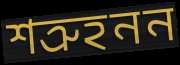
শত্রুহনন